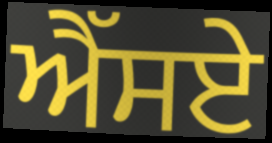
ਐੱਸਏ